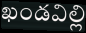
ఖండవిల్లి